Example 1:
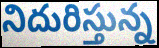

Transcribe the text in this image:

నిదురిస్తున్న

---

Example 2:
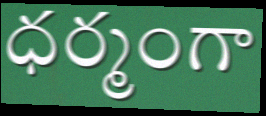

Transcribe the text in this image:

ధర్మంగా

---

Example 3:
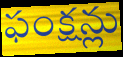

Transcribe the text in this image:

ఫంక్షన్లు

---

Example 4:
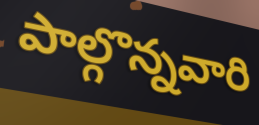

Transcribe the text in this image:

పాల్గొన్నవారి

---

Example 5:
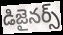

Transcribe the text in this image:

డిజైనర్స్